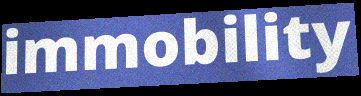
immobility